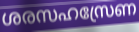
ശരസഹസ്രേണ